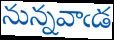
నున్నవాఁడ